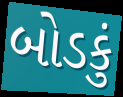
બોડકું